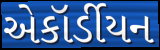
એકૉર્ડીયન